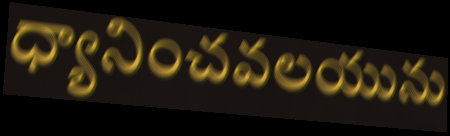
ధ్యానించవలయును